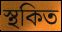
স্থকিত